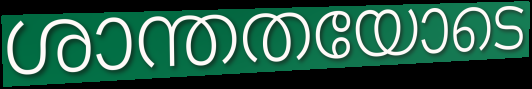
ശാന്തതയോടെ